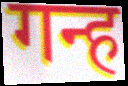
गन्ह